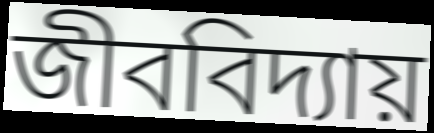
জীববিদ্যায়